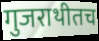
गुजराथीतच